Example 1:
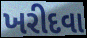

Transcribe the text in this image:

ખરીદવા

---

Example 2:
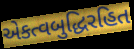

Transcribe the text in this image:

એકત્વબુદ્ધિરહિત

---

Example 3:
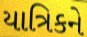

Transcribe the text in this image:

યાત્રિકને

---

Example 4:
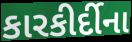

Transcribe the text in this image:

કારકીર્દીના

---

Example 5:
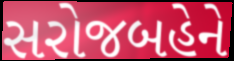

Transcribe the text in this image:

સરોજબહેને